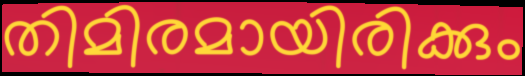
തിമിരമായിരിക്കും